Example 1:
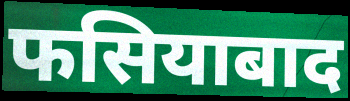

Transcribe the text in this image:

फसियाबाद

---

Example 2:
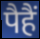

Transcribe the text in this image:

पैहैं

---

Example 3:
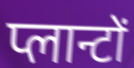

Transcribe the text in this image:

प्लान्टों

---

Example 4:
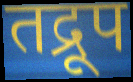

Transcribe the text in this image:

तद्रूप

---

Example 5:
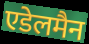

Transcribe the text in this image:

एडेलमैन